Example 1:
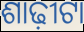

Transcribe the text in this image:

ଶାଢ଼ୀଟା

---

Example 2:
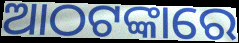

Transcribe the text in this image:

ଆଠଟଙ୍କାରେ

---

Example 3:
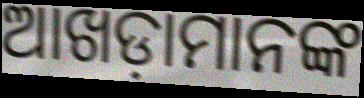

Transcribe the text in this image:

ଆଖଡ଼ାମାନଙ୍କ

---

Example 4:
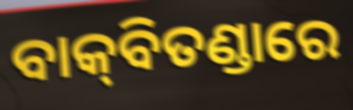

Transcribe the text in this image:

ବାକ୍‌ବିତଣ୍ଡାରେ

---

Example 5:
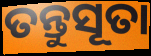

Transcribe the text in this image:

ତନ୍ତୁସୂତା